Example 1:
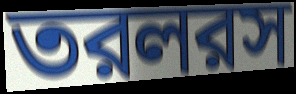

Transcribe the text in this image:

তরলরস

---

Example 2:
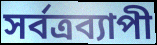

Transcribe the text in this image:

সর্বত্রব্যাপী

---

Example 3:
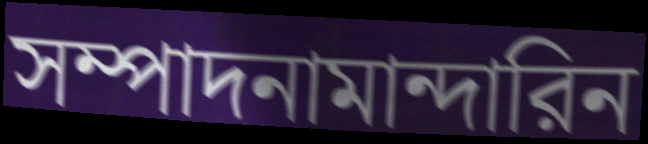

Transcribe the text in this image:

সম্পাদনামান্দারিন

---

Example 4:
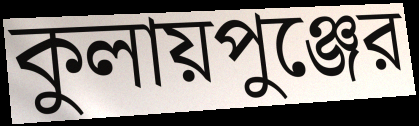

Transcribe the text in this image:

কুলায়পুঞ্জের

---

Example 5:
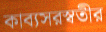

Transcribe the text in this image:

কাব্যসরস্বতীর